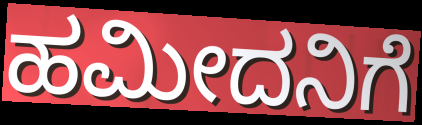
ಹಮೀದನಿಗೆ